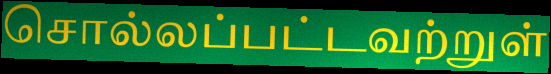
சொல்லப்பட்டவற்றுள்